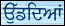
ਉੱਡਦਿਆਂ